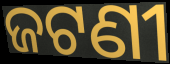
ଜଟଣୀ